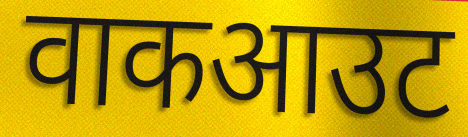
वाकआउट